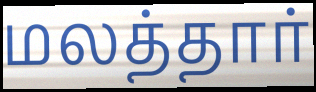
மலத்தார்